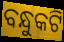
ବନ୍ଧୁକଟି